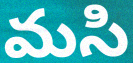
మసి